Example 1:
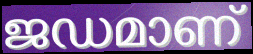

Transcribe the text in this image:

ജഡമാണ്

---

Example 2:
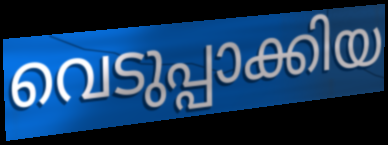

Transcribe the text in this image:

വെടുപ്പാക്കിയ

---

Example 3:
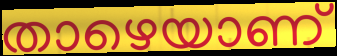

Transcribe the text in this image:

താഴെയാണ്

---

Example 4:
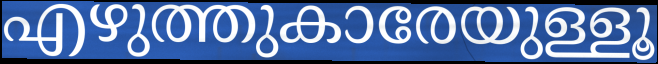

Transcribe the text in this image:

എഴുത്തുകാരേയുള്ളൂ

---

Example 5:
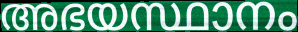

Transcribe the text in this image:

അഭയസ്ഥാനം